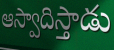
ఆస్వాదిస్తాడు